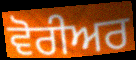
ਵੋਰੀਅਰ